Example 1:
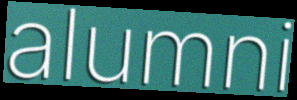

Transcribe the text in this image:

alumni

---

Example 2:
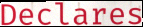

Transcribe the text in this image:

Declares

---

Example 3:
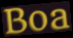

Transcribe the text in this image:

Boa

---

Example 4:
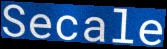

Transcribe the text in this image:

Secale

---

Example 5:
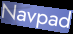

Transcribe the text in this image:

Navpad